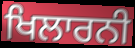
ਖਿਲਾਰਨੀ